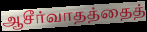
ஆசீர்வாதத்தைத்